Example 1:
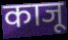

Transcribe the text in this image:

काजू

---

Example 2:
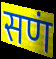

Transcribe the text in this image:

सणं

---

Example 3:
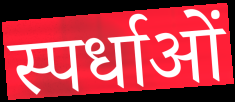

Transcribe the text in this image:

स्पर्धाओं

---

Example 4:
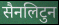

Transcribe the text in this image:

सैनलिटुन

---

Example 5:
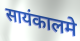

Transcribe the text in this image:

सायंकालमे